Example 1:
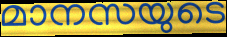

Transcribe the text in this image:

മാനസയുടെ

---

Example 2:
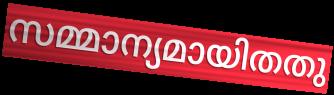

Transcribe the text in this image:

സമ്മാന്യമായിതതു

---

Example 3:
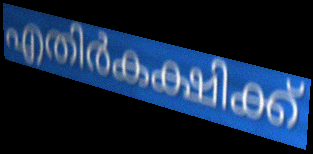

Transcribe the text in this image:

എതിർകക്ഷിക്ക്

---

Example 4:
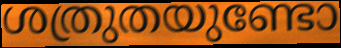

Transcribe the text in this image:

ശത്രുതയുണ്ടോ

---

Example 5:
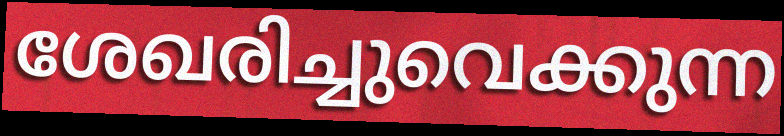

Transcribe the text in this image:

ശേഖരിച്ചുവെക്കുന്ന